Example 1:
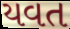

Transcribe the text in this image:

યવત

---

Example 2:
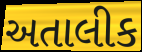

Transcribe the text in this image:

અતાલીક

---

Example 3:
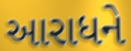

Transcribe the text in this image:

આરાધને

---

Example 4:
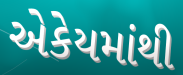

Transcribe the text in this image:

એકેયમાંથી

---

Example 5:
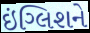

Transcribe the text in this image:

ઇંગ્લિશને